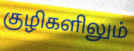
குழிகளிலும்